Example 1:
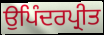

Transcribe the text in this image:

ਉਪਿੰਦਰਪ੍ਰੀਤ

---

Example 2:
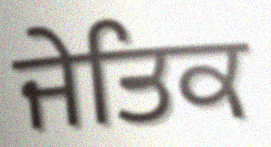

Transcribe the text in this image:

ਜੇਤਿਕ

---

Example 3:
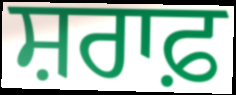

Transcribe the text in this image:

ਸ਼ਰਾਫ਼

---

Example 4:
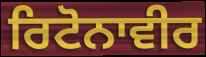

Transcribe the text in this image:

ਰਿਟੋਨਾਵੀਰ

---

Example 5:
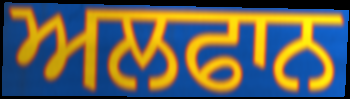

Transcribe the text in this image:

ਅਲਫਾਨ